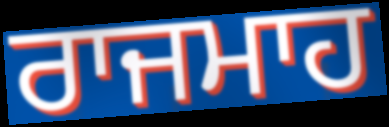
ਰਾਜਮਾਹ